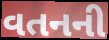
વતનની